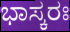
ಭಾಸ್ಕರಃ